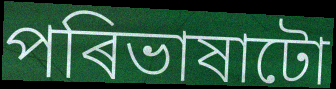
পৰিভাষাটো